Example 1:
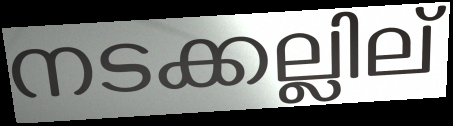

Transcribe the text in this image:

നടക്കല്ലില്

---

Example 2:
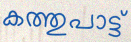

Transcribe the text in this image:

കത്തുപാട്ട്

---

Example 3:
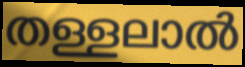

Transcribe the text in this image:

തള്ളലാൽ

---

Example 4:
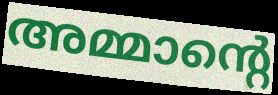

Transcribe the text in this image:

അമ്മാന്റെ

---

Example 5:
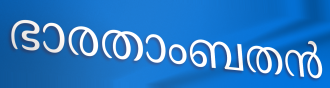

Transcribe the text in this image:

ഭാരതാംബതൻ